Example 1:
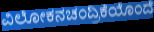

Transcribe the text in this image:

ವಿಲೋಕನಚಂದ್ರಿಕೆಯೊಂದೆ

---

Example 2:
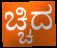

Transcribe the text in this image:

ಚ್ಚಿದ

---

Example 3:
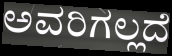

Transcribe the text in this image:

ಅವರಿಗಲ್ಲದೆ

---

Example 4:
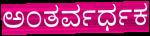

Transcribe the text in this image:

ಅಂತರ್ವರ್ಧಕ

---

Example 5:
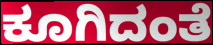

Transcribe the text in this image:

ಕೂಗಿದಂತೆ